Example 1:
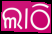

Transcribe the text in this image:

ଲାଠି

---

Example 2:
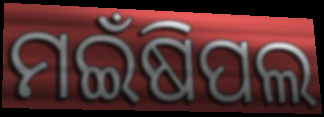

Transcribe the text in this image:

ମଇଁଷିପଲ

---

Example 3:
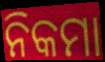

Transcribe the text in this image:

ନିକମା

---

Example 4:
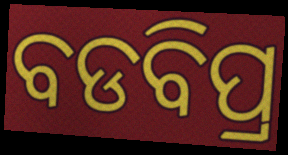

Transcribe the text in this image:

ବଡବିପ୍ର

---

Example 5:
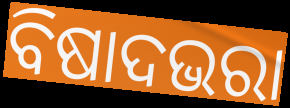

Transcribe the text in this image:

ବିଷାଦଭରା